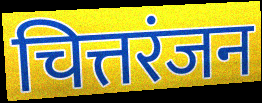
चित्तरंजन